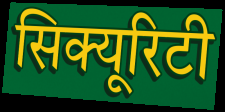
सिक्यूरिटी